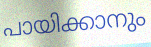
പായിക്കാനും